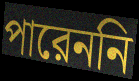
পারেননি